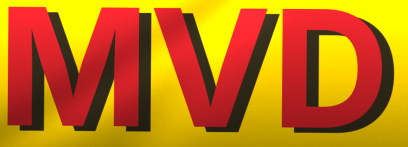
MVD